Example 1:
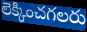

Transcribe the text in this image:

లెక్కించగలరు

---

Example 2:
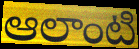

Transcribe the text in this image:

ఆలాంటి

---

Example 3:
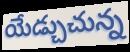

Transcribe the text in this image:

యేడ్చుచున్న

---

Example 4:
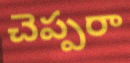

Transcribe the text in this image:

చెప్పరా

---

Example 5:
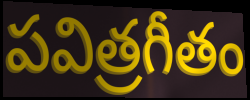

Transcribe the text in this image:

పవిత్రగీతం